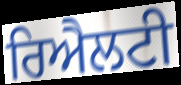
ਰਿਐਲਟੀ